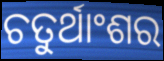
ଚତୁର୍ଥାଂଶର